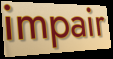
impair